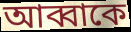
আব্বাকে